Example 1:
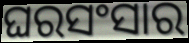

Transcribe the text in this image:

ଘରସଂସାର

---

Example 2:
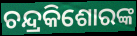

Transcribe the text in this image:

ଚନ୍ଦ୍ରକିଶୋରଙ୍କ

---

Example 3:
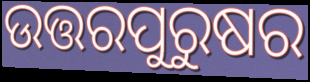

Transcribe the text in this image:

ଉତ୍ତରପୁରୁଷର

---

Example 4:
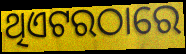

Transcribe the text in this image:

ଥିଏଟରଠାରେ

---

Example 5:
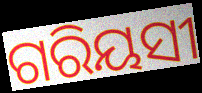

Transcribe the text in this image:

ଗରିୟସୀ